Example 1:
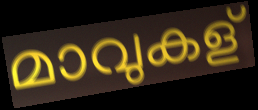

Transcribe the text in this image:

മാവുകള്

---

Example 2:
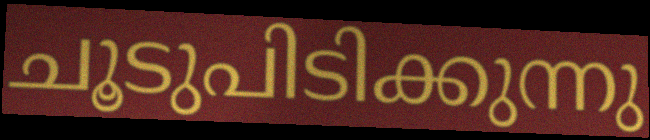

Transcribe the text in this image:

ചൂടുപിടിക്കുന്നു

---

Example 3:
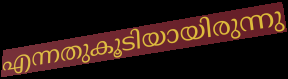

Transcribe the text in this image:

എന്നതുകൂടിയായിരുന്നു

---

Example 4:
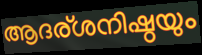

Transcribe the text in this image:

ആദര്ശനിഷ്ഠയും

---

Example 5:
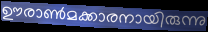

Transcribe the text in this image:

ഊരാൺമക്കാരനായിരുന്നു